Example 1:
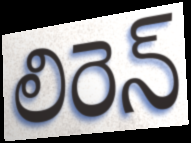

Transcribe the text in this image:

లిరెన్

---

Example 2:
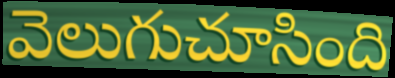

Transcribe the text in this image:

వెలుగుచూసింది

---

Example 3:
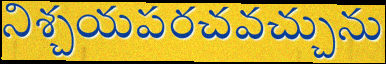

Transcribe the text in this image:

నిశ్చయపరచవచ్చును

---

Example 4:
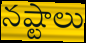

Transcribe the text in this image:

నష్టాలు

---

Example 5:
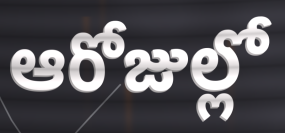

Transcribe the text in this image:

ఆరోజుల్లో